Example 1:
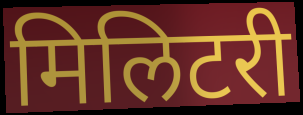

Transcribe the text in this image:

मिलिटरी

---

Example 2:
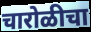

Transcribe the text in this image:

चारोळीचा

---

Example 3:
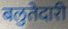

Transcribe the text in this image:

बलुतेदारी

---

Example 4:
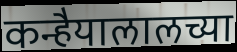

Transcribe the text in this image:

कन्हैयालालच्या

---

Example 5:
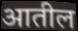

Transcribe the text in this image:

आतील